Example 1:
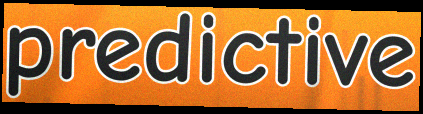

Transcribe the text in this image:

predictive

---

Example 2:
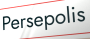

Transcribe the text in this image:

Persepolis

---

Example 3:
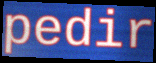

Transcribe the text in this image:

pedir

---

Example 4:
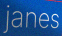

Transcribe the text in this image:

janes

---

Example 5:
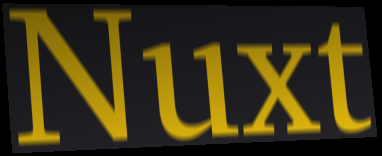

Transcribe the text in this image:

Nuxt